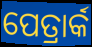
ପେତ୍ରାର୍କ